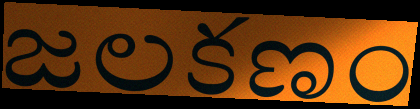
జలకణం